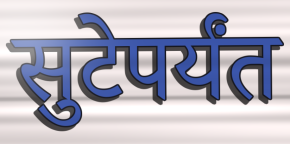
सुटेपर्यंत